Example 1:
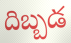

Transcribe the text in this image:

దిబ్బడ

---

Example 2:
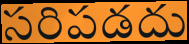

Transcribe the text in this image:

సరిపడదు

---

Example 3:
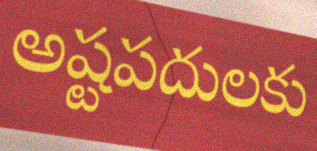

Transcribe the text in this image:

అష్టపదులకు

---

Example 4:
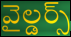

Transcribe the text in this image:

వైల్డర్స్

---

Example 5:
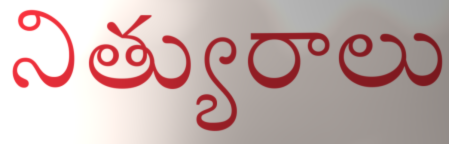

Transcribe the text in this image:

నిత్యురాలు